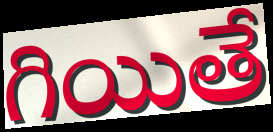
గియితే